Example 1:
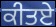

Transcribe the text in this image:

ਕੀਤਏ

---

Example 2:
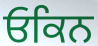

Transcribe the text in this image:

ਓਕਿਨ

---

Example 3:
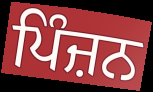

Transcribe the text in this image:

ਪਿੰਜ਼ਨ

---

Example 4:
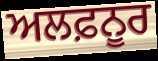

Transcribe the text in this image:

ਅਲਫ਼ਨੂਰ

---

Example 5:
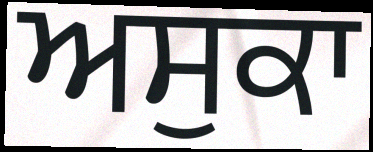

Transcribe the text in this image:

ਅਸੁਕਾ